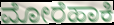
ಮೋರೆಹಾಕಿ